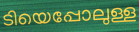
ടിയെപ്പോലുള്ള